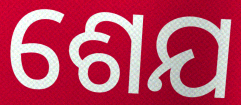
ଶେଯ